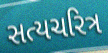
સત્યચરિત્ર